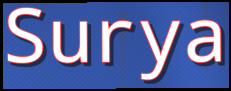
Surya